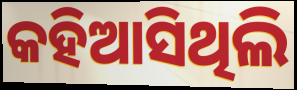
କହିଆସିଥିଲି